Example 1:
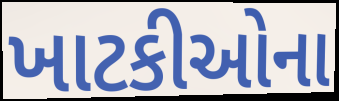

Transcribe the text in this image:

ખાટકીઓના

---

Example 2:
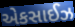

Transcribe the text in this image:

એકસાઈઝ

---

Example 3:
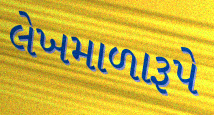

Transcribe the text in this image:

લેખમાળારૂપે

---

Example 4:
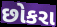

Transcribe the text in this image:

છોકરા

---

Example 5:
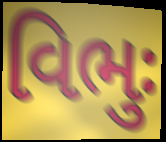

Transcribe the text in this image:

વિભુઃ